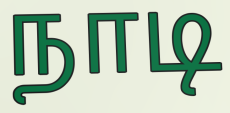
நாடி